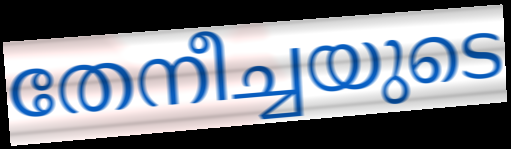
തേനീച്ചയുടെ